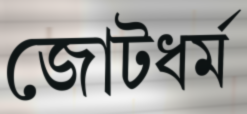
জোটধর্ম